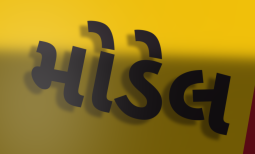
મોડેલ